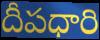
దీపధారి